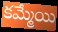
కమ్మేయి